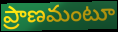
ప్రాణమంటూ